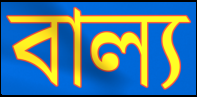
বাল্য